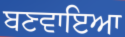
ਬਣਵਾਇਆ